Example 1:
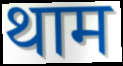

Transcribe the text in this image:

थाम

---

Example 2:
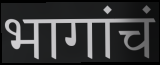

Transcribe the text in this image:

भागांचं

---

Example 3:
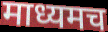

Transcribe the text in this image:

माध्यमच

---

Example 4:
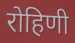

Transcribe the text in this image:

रोहिणी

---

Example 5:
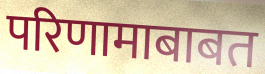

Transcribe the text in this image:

परिणामाबाबत